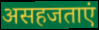
असहजताएं